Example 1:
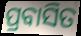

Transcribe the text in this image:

ପ୍ରବାସିତ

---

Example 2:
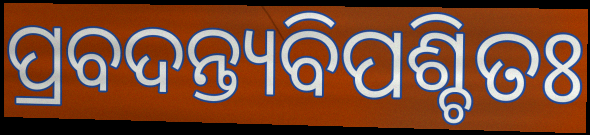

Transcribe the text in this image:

ପ୍ରବଦନ୍ତ୍ୟବିପଶ୍ଚିତଃ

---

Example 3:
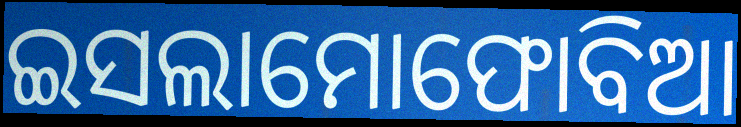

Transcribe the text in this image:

ଇସଲାମୋଫୋବିଆ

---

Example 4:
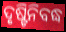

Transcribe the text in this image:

ଦୃଷ୍ଟିନିବଦ୍ଧ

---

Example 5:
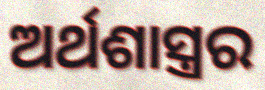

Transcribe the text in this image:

ଅର୍ଥଶାସ୍ତ୍ରର